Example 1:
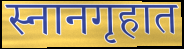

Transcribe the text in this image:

स्नानगृहात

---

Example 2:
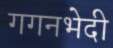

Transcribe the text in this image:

गगनभेदी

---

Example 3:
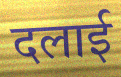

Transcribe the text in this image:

दलाई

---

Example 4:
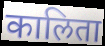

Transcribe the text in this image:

कालिता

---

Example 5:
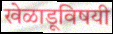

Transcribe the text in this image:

खेळाडूविषयी